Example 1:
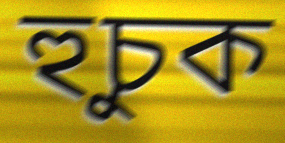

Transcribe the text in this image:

হুচুক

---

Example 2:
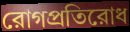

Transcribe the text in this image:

রোগপ্রতিরোধ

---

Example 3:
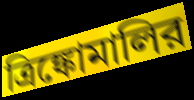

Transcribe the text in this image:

ত্রিঙ্কোমালির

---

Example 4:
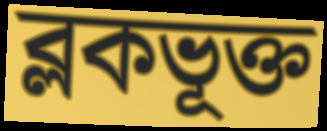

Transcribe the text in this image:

ব্লকভূক্ত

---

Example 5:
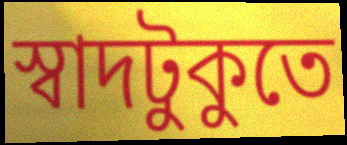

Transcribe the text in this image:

স্বাদটুকুতে